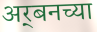
अर्बनच्या